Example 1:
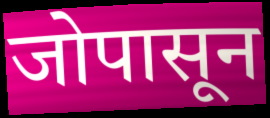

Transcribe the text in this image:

जोपासून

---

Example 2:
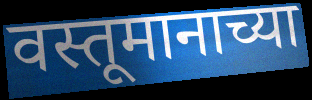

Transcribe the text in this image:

वस्तूमानाच्या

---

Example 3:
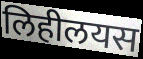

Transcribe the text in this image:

लिहीलयस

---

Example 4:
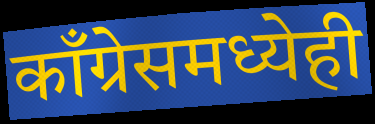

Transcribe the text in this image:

काँग्रेसमध्येही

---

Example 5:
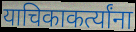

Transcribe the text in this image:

याचिकाकर्त्यांना